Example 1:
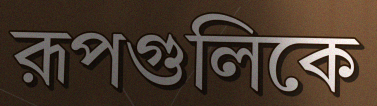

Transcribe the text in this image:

রূপগুলিকে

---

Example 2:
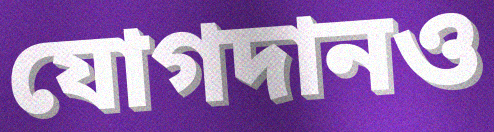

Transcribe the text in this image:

যোগদানও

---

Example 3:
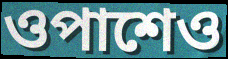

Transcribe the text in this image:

ওপাশেও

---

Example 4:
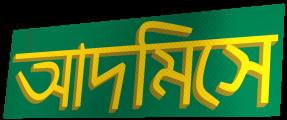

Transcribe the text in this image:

আদমিসে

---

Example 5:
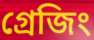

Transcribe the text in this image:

গ্রেজিং